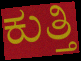
ಕುತ್ತಿ